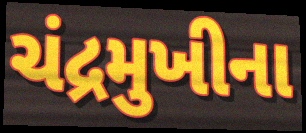
ચંદ્રમુખીના